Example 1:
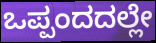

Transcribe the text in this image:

ಒಪ್ಪಂದದಲ್ಲೇ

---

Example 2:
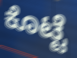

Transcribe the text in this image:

ಕೊಟ್ಟೆ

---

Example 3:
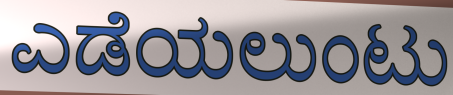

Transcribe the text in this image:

ಎಡೆಯಲುಂಟು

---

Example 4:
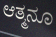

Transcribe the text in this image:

ಆತ್ಮನೂ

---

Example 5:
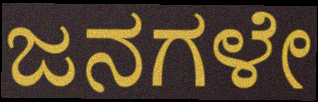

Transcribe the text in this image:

ಜನಗಳೇ